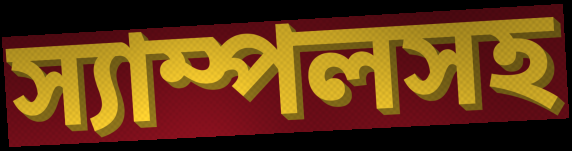
স্যাম্পলসহ